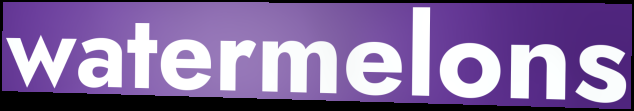
watermelons